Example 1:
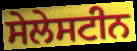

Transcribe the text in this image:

ਸੇਲੇਸਟੀਨ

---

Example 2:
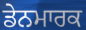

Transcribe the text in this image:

ਡੇਨਮਾਰਕ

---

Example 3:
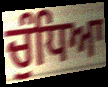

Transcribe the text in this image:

ਚੁੰਧਿਆ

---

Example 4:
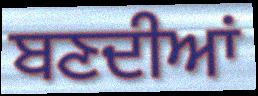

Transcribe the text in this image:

ਬਣਦੀਆਂ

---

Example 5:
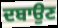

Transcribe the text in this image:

ਦਬਾਉਣ